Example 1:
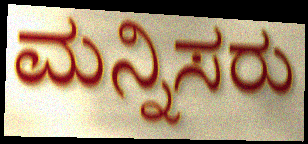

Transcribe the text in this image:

ಮನ್ನಿಸರು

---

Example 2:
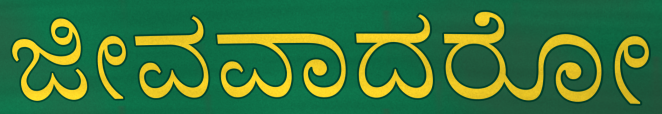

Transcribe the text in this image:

ಜೀವವಾದರೋ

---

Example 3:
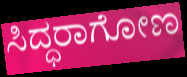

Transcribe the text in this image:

ಸಿದ್ಧರಾಗೋಣ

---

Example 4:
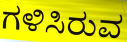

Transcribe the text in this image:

ಗಳಿಸಿರುವ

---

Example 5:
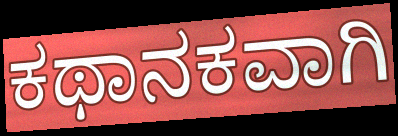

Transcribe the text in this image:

ಕಥಾನಕವಾಗಿ